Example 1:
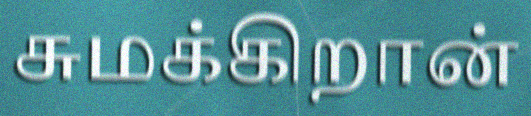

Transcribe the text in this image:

சுமக்கிறான்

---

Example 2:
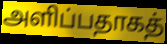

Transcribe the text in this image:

அளிப்பதாகத்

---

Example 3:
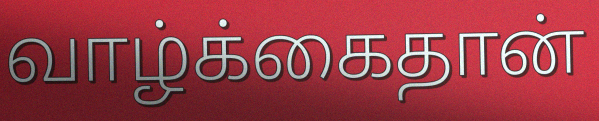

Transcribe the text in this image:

வாழ்க்கைதான்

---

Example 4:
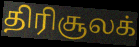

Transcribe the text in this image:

திரிசூலக்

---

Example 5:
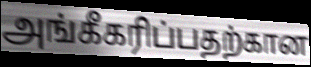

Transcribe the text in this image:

அங்கீகரிப்பதற்கான